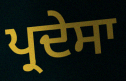
ਪ੍ਰਦੇਸਾ